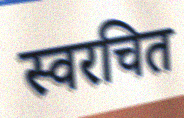
स्वरचित